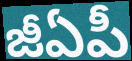
జీఏపీ